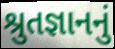
શ્રુતજ્ઞાનનું